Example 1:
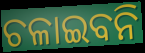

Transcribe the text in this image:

ଚଳାଇବନି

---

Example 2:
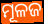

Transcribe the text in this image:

ମୂଳଜ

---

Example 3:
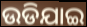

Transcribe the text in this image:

ଉଡିଯାଇ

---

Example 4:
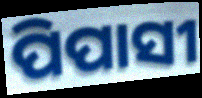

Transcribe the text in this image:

ପିପାସୀ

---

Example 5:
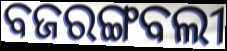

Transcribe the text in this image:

ବଜରଙ୍ଗବଲୀ